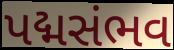
પદ્મસંભવ